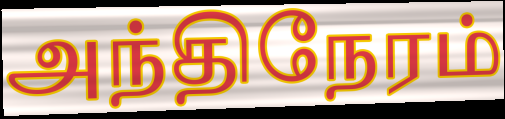
அந்திநேரம்